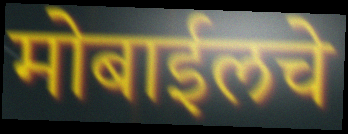
मोबाईलचे